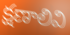
క్షణాలివి